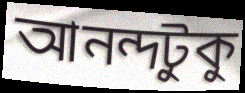
আনন্দটুকু